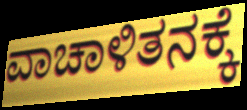
ವಾಚಾಳಿತನಕ್ಕೆ